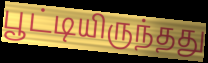
பூட்டியிருந்தது